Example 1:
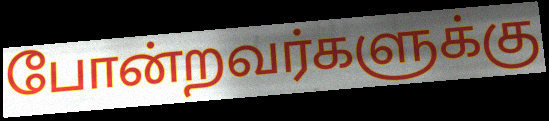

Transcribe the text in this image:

போன்றவர்களுக்கு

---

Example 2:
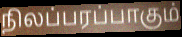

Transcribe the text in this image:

நிலப்பரப்பாகும்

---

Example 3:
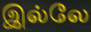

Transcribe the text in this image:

இல்லே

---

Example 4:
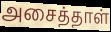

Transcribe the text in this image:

அசைத்தாள்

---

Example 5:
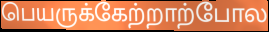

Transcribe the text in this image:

பெயருக்கேற்றாற்போல